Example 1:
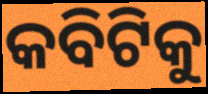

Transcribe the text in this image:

କବିଟିକୁ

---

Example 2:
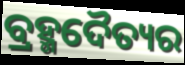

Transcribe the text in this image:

ବ୍ରହ୍ମଦୈତ୍ୟର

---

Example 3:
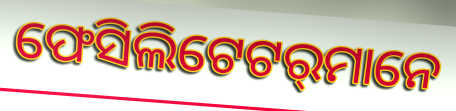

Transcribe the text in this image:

ଫେସିଲିଟେଟର୍‌ମାନେ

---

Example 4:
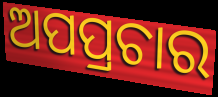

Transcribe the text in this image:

ଅପପ୍ରଚାର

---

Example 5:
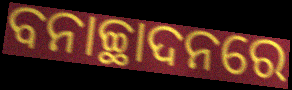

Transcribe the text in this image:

ବନାଚ୍ଛାଦନରେ